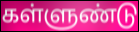
கள்ளுண்டு